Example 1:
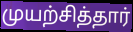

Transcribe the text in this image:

முயற்சித்தார்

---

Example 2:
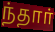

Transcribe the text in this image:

ந்தார்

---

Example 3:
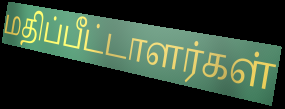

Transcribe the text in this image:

மதிப்பீட்டாளர்கள்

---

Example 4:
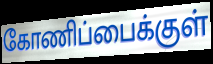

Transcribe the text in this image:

கோணிப்பைக்குள்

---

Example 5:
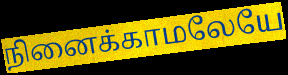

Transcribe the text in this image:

நினைக்காமலேயே